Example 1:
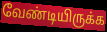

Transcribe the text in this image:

வேண்டியிருக்க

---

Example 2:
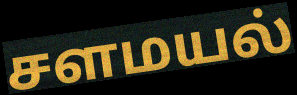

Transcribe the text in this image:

சளமயல்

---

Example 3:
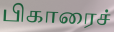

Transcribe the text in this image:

பிகாரைச்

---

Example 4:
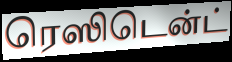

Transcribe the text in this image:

ரெஸிடென்ட்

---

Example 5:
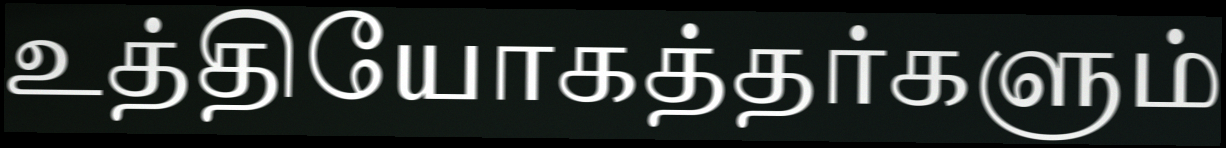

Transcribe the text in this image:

உத்தியோகத்தர்களும்